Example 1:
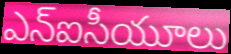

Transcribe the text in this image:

ఎన్ఐసీయూలు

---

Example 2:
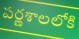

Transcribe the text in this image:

పర్ణశాలలోకి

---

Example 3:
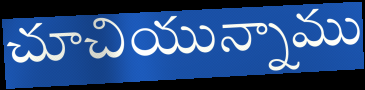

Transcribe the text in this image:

చూచియున్నాము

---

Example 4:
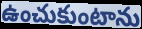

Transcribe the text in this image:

ఉంచుకుంటాను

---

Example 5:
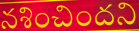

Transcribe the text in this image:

నశించిందని